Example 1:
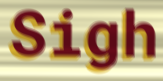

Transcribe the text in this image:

Sigh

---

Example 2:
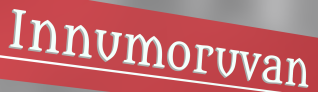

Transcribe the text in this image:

Innumoruvan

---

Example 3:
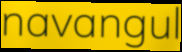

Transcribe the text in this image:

navangul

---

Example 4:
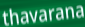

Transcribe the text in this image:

thavarana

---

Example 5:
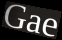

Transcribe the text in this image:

Gae